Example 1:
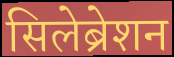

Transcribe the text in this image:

सिलेब्रेशन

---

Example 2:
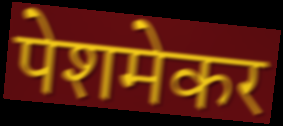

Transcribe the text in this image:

पेशमेकर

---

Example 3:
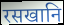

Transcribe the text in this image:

रसखानि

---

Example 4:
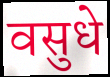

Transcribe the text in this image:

वसुधे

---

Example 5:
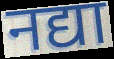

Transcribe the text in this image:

नद्या